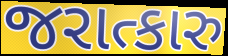
જરાત્કારુ